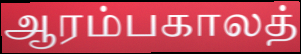
ஆரம்பகாலத்